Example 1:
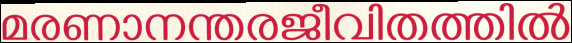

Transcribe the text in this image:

മരണാനന്തരജീവിതത്തിൽ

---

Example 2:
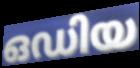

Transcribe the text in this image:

ഒഡിയ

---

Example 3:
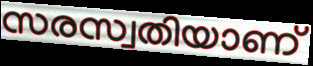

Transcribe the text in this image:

സരസ്വതിയാണ്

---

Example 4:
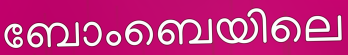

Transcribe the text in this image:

ബോംബെയിലെ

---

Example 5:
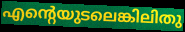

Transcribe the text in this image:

എന്റെയുടലെങ്കിലിതു